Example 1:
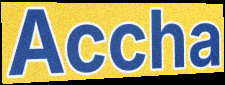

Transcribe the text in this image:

Accha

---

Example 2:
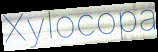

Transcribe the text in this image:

Xylocopa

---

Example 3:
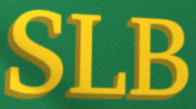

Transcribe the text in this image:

SLB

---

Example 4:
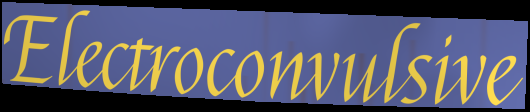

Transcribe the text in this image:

Electroconvulsive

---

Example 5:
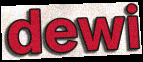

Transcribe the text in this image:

dewi